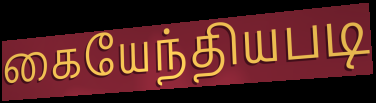
கையேந்தியபடி